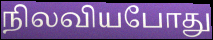
நிலவியபோது